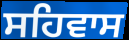
ਸਹਿਵਾਸ